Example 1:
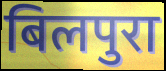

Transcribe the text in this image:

बिलपुरा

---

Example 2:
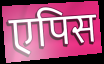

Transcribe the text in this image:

एपिस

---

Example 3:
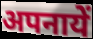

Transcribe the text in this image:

अपनायें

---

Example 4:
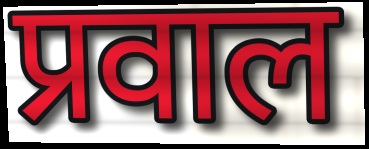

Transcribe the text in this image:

प्रवाल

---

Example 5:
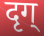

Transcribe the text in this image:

दृग्